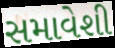
સમાવેશી